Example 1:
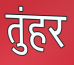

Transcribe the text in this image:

तुंहर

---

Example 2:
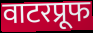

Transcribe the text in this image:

वाटरप्रूफ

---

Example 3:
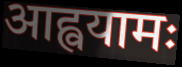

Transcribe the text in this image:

आह्वयामः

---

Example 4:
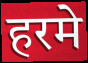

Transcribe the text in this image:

हरमे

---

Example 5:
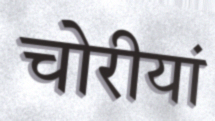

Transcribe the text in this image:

चोरीयां